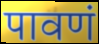
पावणं